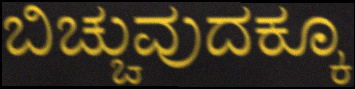
ಬಿಚ್ಚುವುದಕ್ಕೂ